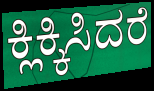
ಕ್ಲಿಕ್ಕಿಸಿದರೆ